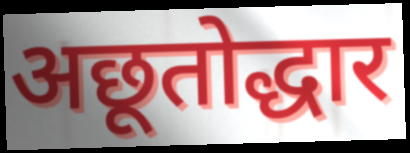
अछूतोद्धार